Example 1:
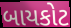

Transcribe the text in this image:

બાયકોટ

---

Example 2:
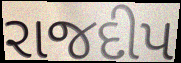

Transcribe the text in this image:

રાજદીપ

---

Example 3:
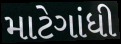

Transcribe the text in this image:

માટેગાંધી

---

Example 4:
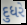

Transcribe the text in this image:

દુધરે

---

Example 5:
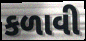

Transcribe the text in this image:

કળાવી